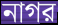
নাগর